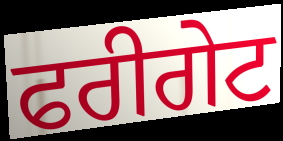
ਫਰੀਗੇਟ